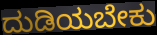
ದುಡಿಯಬೇಕು